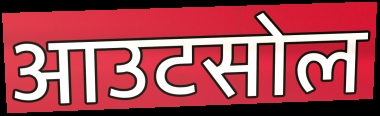
आउटसोल